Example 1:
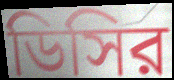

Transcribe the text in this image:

ডিসির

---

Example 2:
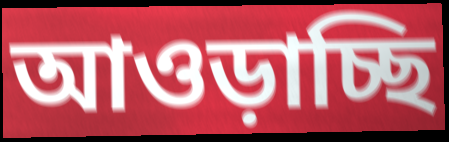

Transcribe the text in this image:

আওড়াচ্ছি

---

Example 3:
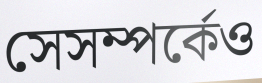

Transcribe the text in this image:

সেসম্পর্কেও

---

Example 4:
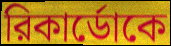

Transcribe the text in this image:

রিকার্ডোকে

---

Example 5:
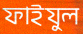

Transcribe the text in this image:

ফাইযুল